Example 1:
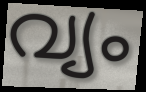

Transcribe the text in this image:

വ്യം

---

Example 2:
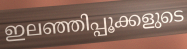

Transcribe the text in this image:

ഇലഞ്ഞിപ്പൂക്കളുടെ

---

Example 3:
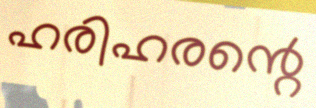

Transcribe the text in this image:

ഹരിഹരന്റെ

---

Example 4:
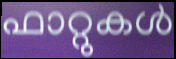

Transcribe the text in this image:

ഫാറ്റുകൾ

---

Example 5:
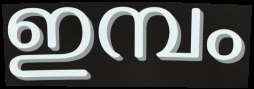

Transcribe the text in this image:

ഇമ്പം